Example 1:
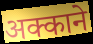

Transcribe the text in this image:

अक्काने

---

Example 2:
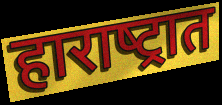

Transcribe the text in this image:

हाराष्ट्रात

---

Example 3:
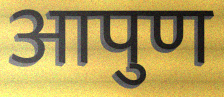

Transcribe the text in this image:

आपुण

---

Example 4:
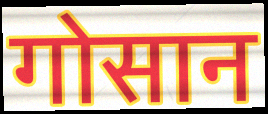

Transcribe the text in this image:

गोसान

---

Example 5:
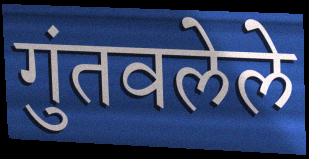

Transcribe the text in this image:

गुंतवलेले